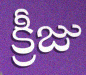
క్రీజు